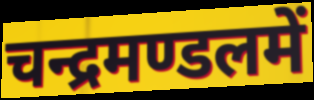
चन्द्रमण्डलमें